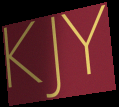
KJY